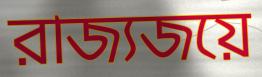
রাজ্যজয়ে